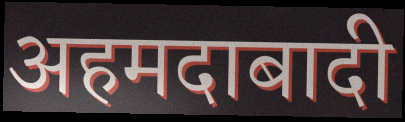
अहमदाबादी